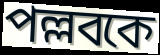
পল্লবকে